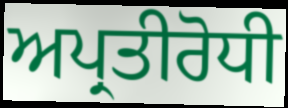
ਅਪ੍ਰਤੀਰੋਧੀ